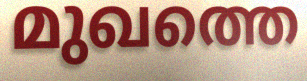
മുഖത്തെ